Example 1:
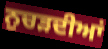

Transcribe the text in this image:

ਨੁਚੜਦੀਆਂ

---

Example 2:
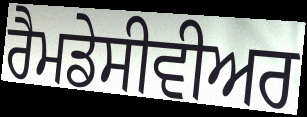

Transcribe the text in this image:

ਰੈਮਡੇਸੀਵੀਅਰ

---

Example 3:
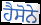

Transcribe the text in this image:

ਹੈਸੋਨੇ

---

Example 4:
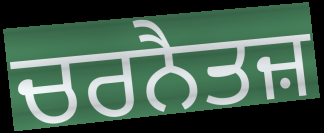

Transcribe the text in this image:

ਚਰਨੈਤਜ਼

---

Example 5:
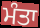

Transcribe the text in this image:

ਮੰਤਾ